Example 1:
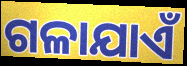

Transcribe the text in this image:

ଗଳାଯାଏଁ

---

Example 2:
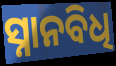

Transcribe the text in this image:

ସ୍ନାନବିଧି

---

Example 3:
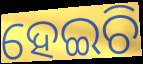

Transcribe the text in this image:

ହେଇଚି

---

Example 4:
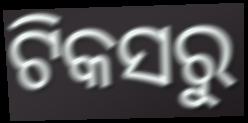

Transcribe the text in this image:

ଟିକସରୁ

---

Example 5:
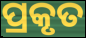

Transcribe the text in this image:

ପ୍ରକୃତ